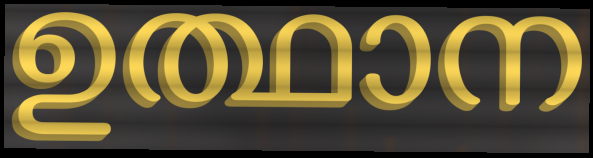
ഉത്ഥാന